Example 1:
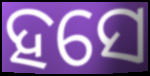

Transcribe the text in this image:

ହସେ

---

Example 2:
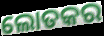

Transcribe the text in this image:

ଲୋତକର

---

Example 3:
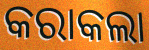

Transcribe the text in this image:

କରାକଲା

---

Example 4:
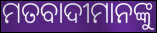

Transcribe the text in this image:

ମତବାଦୀମାନଙ୍କୁ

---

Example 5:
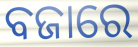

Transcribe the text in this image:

ବଜାରେ